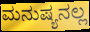
ಮನುಷ್ಯನಲ್ಲ